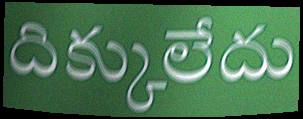
దిక్కులేదు